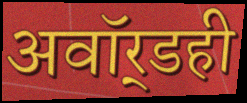
अवॉर्डही